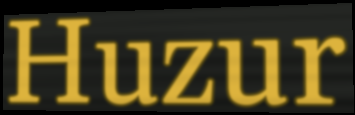
Huzur